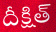
దీక్షిత్